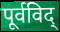
पूर्वविद्